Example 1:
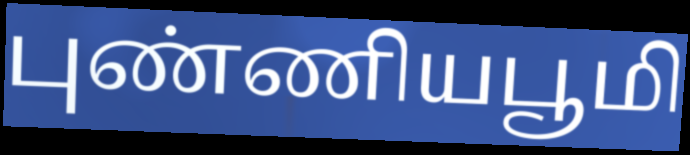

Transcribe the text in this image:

புண்ணியபூமி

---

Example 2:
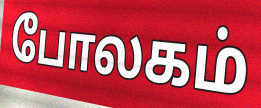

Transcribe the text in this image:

போலகம்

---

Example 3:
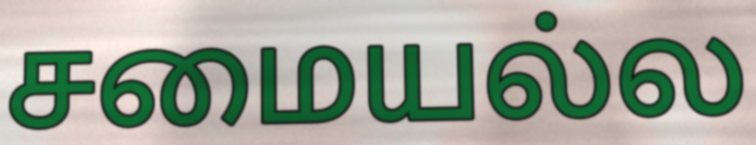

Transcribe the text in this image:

சமையல்ல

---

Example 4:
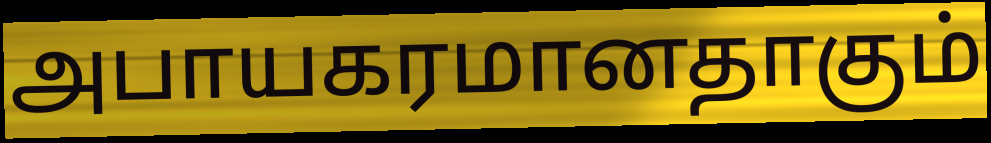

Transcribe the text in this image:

அபாயகரமானதாகும்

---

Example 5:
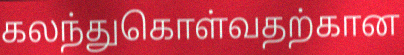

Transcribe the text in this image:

கலந்துகொள்வதற்கான